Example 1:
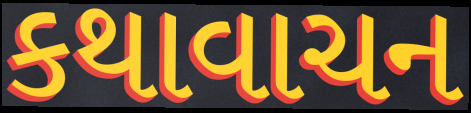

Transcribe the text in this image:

કથાવાચન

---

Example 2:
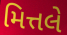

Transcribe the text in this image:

મિત્તલે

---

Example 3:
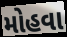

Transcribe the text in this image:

મોહવા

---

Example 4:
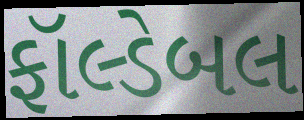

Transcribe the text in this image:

ફૉલ્ડેબલ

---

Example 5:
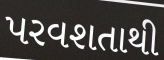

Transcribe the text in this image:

પરવશતાથી